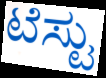
ಟೆಸ್ಟು